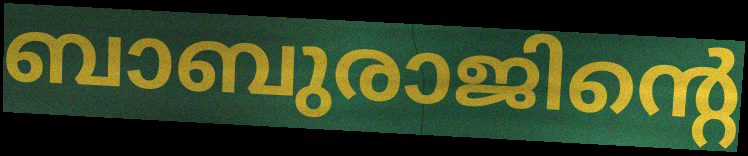
ബാബുരാജിന്റെ